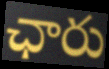
ఛారు